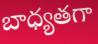
బాధ్యతగా